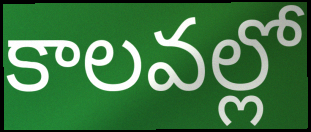
కాలవల్లో